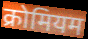
क्रोमियम